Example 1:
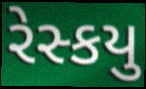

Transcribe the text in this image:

રેસ્કયુ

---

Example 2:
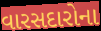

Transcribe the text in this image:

વારસદારોના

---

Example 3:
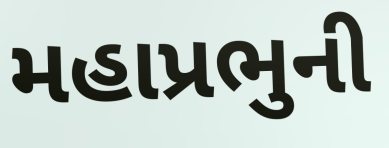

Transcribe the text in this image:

મહાપ્રભુની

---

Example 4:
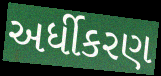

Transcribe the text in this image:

અર્ધીકરણ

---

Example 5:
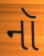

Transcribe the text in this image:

નૉ